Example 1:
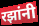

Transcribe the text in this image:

रझांनी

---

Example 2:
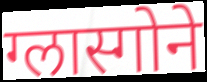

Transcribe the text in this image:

ग्लास्गोने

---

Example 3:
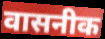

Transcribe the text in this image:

वासनीक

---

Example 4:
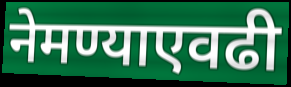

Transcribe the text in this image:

नेमण्याएवढी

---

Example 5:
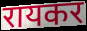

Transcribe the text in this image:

रायकर